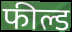
फील्‍ड